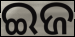
ଇଜ